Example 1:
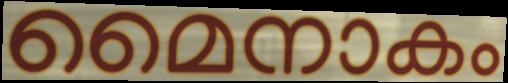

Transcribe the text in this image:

മൈനാകം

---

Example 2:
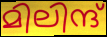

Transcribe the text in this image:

മിലിന്ദ്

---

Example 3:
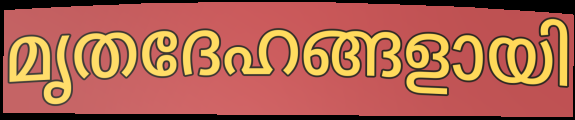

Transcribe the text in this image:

മൃതദേഹങ്ങളായി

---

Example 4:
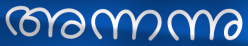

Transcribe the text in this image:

അന്നന്നു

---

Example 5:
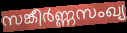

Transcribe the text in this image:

സങ്കീർണ്ണസംഖ്യ